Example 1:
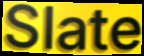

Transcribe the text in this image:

Slate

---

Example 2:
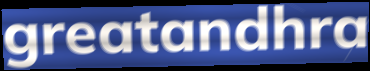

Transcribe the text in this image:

greatandhra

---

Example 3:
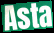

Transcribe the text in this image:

Asta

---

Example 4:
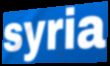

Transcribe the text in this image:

syria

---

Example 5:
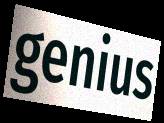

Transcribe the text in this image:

genius